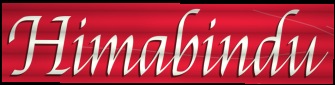
Himabindu